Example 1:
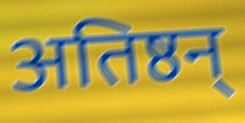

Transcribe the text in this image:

अतिष्ठन्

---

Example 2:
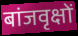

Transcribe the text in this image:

बांजवृक्षों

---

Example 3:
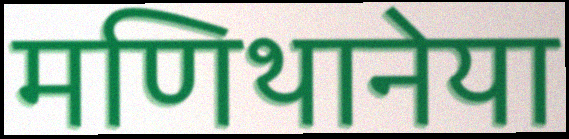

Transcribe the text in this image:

मणिथानेया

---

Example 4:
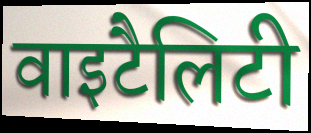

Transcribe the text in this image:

वाइटैलिटी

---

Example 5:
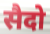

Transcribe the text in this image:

सैदो